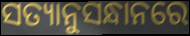
ସତ୍ୟାନୁସନ୍ଧାନରେ